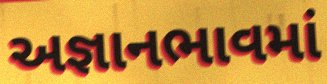
અજ્ઞાનભાવમાં